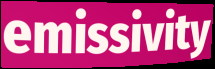
emissivity